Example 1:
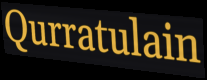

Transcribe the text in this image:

Qurratulain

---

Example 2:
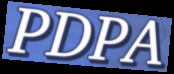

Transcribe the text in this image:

PDPA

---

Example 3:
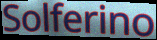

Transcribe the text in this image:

Solferino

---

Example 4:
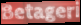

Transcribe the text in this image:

Betageri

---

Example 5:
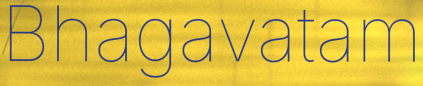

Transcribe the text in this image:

Bhagavatam